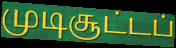
முடிசூட்டப்